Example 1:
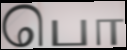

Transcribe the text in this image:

பொ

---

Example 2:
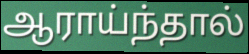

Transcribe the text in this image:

ஆராய்ந்தால்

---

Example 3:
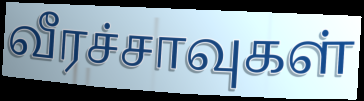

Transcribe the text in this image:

வீரச்சாவுகள்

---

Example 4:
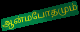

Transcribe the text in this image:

ஆன்மபோதமும்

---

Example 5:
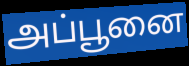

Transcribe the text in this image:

அப்பூனை